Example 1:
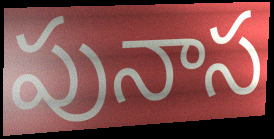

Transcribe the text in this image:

పునాస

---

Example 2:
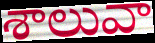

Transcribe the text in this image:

శాలువా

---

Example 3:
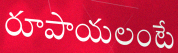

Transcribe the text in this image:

రూపాయలంటే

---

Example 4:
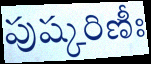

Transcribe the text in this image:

పుష్కరిణీః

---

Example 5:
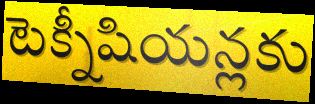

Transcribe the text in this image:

టెక్నీషియన్లకు